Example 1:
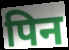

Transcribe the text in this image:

पिन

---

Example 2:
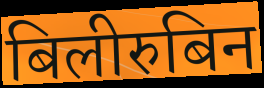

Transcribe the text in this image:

बिलीरुबिन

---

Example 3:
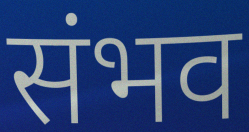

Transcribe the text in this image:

संभव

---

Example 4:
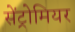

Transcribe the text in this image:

सेंट्रोमियर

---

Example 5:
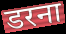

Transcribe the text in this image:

डरना